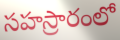
సహస్రారంలో